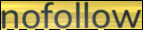
nofollow